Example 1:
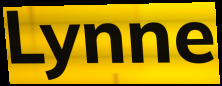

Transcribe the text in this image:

Lynne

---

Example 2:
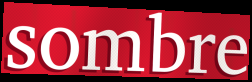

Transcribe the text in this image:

sombre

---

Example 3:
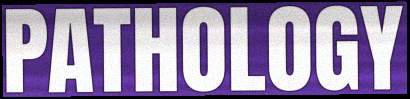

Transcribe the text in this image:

PATHOLOGY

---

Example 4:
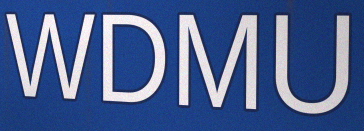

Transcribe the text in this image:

WDMU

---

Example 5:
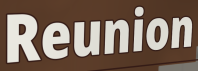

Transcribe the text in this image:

Reunion